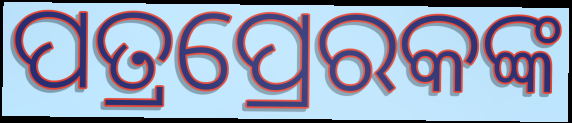
ପତ୍ରପ୍ରେରକଙ୍କ